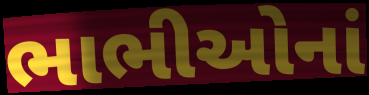
ભાભીઓનાં